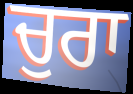
ਚੁਰਾ